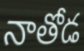
నాతోడ